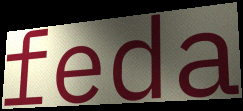
feda